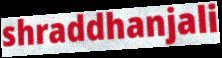
shraddhanjali